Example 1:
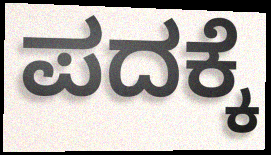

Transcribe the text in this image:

ಪದಕ್ಕೆ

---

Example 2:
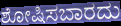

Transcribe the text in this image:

ಶೋಷಿಸಬಾರದು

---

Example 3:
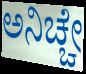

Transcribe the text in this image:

ಅನಿಚ್ಚೇ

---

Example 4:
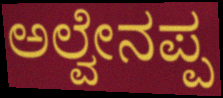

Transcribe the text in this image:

ಅಲ್ವೇನಪ್ಪ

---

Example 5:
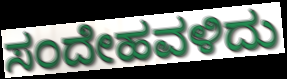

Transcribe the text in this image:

ಸಂದೇಹವಳಿದು